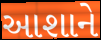
આશાને